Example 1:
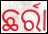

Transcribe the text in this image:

ଛର୍ରା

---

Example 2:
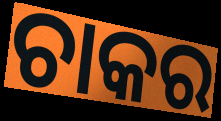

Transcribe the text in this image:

ଚାକର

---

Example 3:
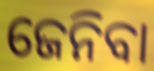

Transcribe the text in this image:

ଜେନିବା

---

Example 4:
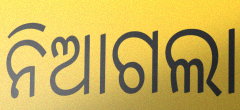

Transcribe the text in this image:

ନିଆଗଲା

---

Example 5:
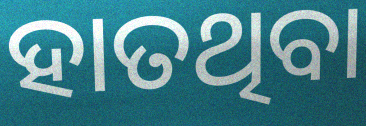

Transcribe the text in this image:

ହାତଥିବା